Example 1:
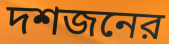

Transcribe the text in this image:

দশজনের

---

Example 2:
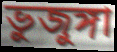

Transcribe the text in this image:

ভুজুঙ্গা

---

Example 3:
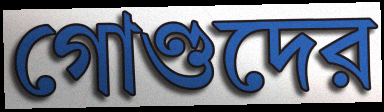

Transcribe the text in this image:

গোণ্ডদের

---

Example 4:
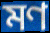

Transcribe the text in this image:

মণ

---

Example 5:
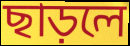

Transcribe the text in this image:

ছাড়লে